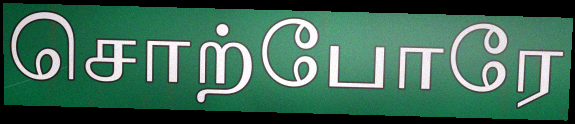
சொற்போரே